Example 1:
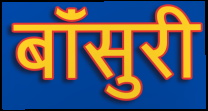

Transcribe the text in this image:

बॉंसुरी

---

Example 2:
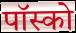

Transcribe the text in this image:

पॉस्‍को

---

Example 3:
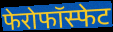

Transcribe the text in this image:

फेरोफॉस्फेट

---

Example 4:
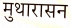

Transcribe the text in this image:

मुथारासन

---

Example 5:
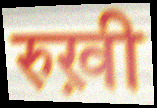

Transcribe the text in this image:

रुख़ी